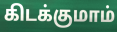
கிடக்குமாம்